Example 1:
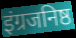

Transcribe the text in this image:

इंग्रजनिष्ठ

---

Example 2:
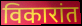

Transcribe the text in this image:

विकारांत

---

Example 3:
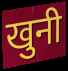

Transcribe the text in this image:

खुनी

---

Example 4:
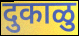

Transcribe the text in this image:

दुकाळु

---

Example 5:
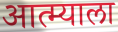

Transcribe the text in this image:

आत्म्याला